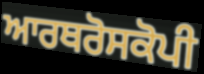
ਆਰਥਰੋਸਕੋਪੀ